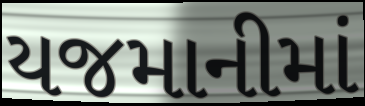
યજમાનીમાં